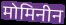
मोमिनीन